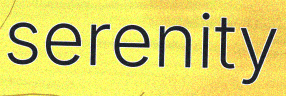
serenity